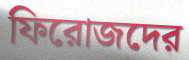
ফিরোজদের